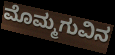
ಮೊಮ್ಮಗುವಿನ